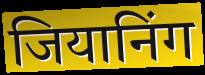
जियानिंग